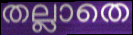
തല്ലാതെ